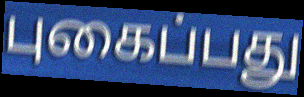
புகைப்பது